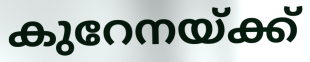
കുറേനയ്ക്ക്